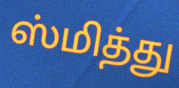
ஸ்மித்து